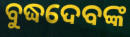
ବୁଦ୍ଧଦେବଙ୍କ